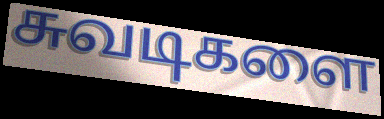
சுவடிகளை